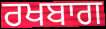
ਰਖਬਾਗ